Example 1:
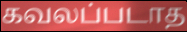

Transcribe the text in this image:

கவலப்படாத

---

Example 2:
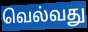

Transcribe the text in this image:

வெல்வது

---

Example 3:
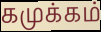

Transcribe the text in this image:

கமுக்கம்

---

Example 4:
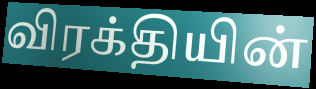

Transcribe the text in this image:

விரக்தியின்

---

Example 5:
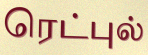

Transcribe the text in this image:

ரெட்புல்